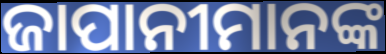
ଜାପାନୀମାନଙ୍କ